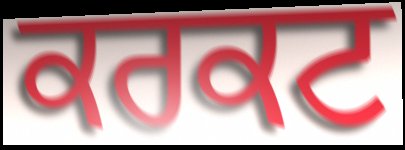
ਕਰਕਟ